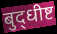
बुद्धीष्ट